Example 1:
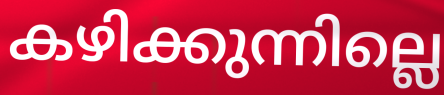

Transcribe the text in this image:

കഴിക്കുന്നില്ലെ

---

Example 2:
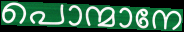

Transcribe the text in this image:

പൊന്മാനേ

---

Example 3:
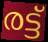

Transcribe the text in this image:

രട്ട്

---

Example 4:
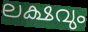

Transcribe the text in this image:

ലക്ഷവും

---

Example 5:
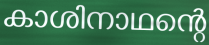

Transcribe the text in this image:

കാശിനാഥന്റെ